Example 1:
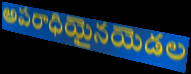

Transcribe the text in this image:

అపరాధియైనయెడల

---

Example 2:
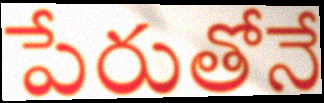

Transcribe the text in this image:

పేరుతోనే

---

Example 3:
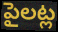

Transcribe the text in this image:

పైలట్ల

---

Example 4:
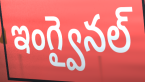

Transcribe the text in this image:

ఇంగ్వైనల్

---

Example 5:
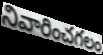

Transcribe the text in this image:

నివారించగలం